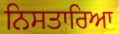
ਨਿਸਤਾਰਿਆ